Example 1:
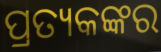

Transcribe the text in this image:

ପ୍ରତ୍ୟକଙ୍କର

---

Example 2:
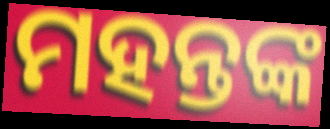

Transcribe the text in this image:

ମହନ୍ତଙ୍କ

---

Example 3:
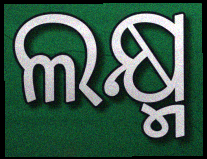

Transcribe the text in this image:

ଲକ୍ଷ୍ମ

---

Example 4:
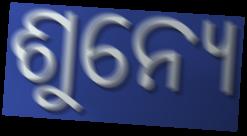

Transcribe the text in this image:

ଶୁନ୍ୟେ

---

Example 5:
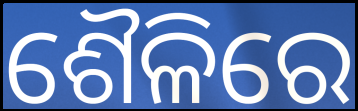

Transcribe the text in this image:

ଶୈଳିରେ